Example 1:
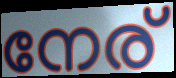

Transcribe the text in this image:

നേര്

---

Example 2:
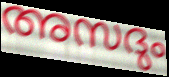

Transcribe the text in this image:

അസദും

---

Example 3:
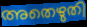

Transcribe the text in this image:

അതെഴുതി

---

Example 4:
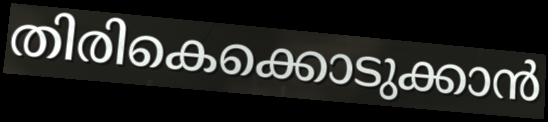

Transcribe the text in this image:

തിരികെക്കൊടുക്കാൻ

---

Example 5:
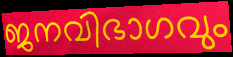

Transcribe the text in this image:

ജനവിഭാഗവും